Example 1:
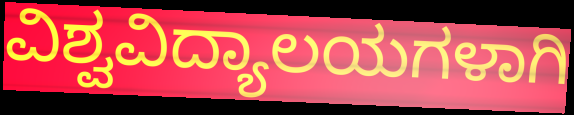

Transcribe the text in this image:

ವಿಶ್ವವಿದ್ಯಾಲಯಗಳಾಗಿ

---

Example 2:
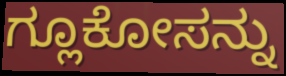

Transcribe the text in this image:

ಗ್ಲೂಕೋಸನ್ನು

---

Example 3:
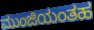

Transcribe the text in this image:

ಮುಂಜಿಯಂತಹ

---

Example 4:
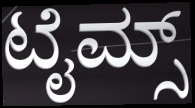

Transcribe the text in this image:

ಟೈಮ್ಸ್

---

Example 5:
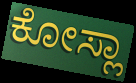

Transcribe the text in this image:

ಕೋಸ್ಲಾ